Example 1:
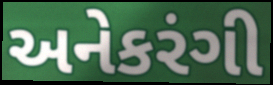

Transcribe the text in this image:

અનેકરંગી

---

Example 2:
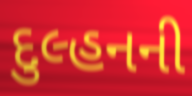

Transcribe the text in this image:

દુલ્હનની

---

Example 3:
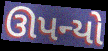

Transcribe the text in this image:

ઊપન્યો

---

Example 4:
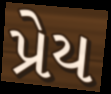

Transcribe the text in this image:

પ્રેય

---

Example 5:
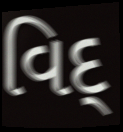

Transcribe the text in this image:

વિદ્